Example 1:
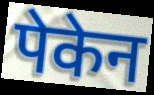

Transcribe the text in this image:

पेकेन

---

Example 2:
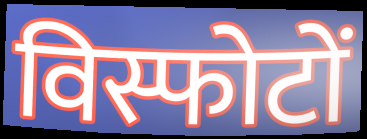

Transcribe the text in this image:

विस्फोटों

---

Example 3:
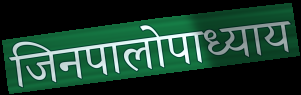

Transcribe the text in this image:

जिनपालोपाध्याय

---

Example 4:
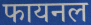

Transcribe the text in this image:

फायनल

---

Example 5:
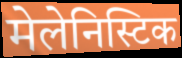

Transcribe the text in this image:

मेलेनिस्टिक